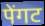
पेंगट